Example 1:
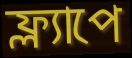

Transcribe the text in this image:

ফ্ল্যাপে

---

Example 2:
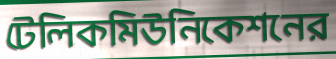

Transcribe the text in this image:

টেলিকমিউনিকেশনের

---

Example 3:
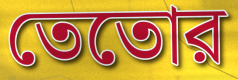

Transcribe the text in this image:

তেতোর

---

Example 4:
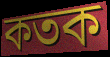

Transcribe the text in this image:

কতক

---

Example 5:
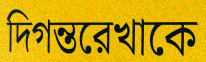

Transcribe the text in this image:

দিগন্তরেখাকে